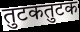
तुटकतुटक